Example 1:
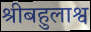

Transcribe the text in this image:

श्रीबहुलाश्व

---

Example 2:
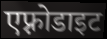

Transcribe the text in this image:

एफ़्रोडाइट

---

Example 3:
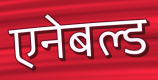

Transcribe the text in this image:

एनेबल्ड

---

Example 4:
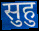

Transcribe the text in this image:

सुहु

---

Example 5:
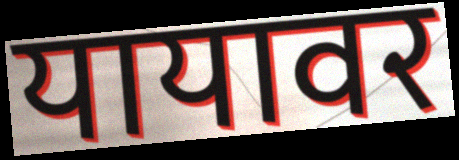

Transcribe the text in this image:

यायावर